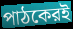
পাঠকেরই